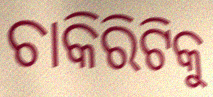
ଚାକିରିଟିକୁ